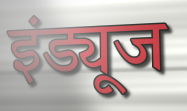
इंड्यूज